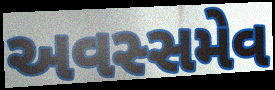
અવસ્સમેવ